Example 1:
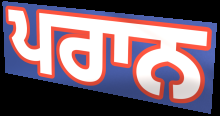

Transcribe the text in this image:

ਪਰਾਨ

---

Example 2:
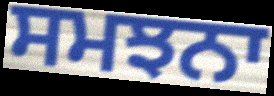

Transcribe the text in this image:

ਸਮਝਨਾ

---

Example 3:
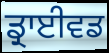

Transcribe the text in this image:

ਡ੍ਰਾਈਵਡ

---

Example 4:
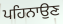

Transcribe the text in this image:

ਪਹਿਨਾਉਣ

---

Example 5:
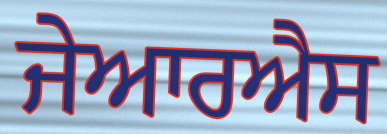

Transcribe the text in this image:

ਜੇਆਰਐਸ